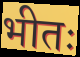
भीतः